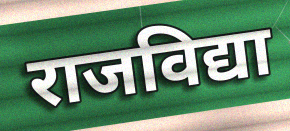
राजविद्या